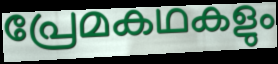
പ്രേമകഥകളും